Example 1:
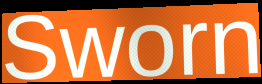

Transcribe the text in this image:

Sworn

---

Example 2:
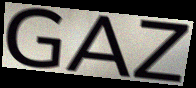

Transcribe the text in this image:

GAZ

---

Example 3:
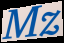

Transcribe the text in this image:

Mz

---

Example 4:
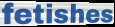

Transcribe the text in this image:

fetishes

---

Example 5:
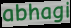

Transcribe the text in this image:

abhagi